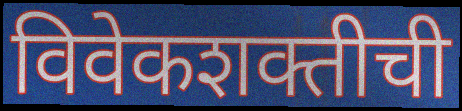
विवेकशक्तीची